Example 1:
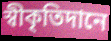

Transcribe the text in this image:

স্বীকৃতিদানে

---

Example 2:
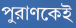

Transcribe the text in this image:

পুরাণকেই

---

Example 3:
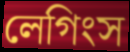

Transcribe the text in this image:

লেগিংস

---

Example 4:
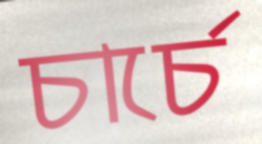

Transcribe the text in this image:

চার্চে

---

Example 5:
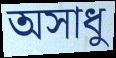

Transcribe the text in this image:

অসাধু